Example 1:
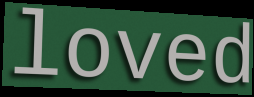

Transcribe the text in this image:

loved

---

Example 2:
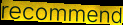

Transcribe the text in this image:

recommend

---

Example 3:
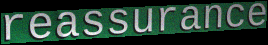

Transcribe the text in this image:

reassurance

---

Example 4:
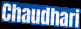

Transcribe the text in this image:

Chaudhari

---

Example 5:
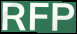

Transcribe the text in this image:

RFP